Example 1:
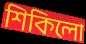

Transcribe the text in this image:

শিকিলো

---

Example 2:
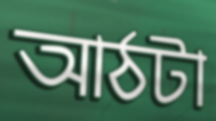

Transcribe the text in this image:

আঠটা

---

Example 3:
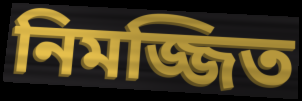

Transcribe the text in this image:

নিমজ্জিত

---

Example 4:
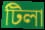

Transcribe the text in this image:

টিলা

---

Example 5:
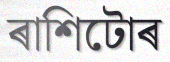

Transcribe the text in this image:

ৰাশিটোৰ